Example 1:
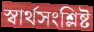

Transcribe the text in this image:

স্বার্থসংশ্লিষ্ট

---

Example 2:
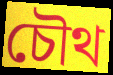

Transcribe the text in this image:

চৌথ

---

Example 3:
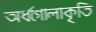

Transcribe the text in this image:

অর্ধগোলাকৃতি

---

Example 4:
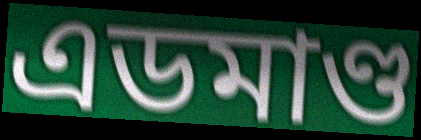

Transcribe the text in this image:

এডমাণ্ড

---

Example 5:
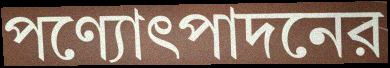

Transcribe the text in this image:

পণ্যোৎপাদনের